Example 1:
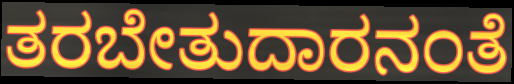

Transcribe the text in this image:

ತರಬೇತುದಾರನಂತೆ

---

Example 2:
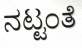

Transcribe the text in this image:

ನಟ್ಟಂತೆ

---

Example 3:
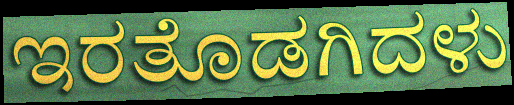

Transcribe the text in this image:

ಇರತೊಡಗಿದಳು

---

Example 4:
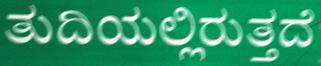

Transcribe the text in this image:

ತುದಿಯಲ್ಲಿರುತ್ತದೆ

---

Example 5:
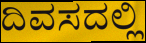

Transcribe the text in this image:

ದಿವಸದಲ್ಲಿ